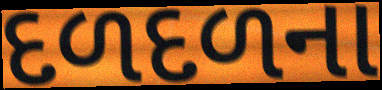
દળદળના